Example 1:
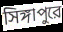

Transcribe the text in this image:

সিঙ্গাপুরে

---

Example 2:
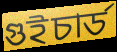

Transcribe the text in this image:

গুইচার্ড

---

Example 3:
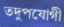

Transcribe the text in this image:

তদুপযোগী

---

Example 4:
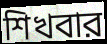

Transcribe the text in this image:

শিখবার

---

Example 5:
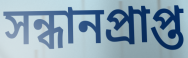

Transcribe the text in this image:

সন্ধানপ্রাপ্ত